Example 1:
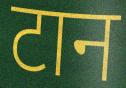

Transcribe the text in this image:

टान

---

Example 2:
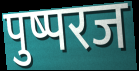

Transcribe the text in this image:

पुष्परज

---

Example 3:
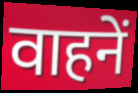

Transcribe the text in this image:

वाहनें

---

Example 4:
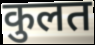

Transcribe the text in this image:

कुलत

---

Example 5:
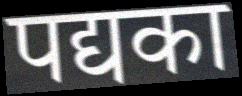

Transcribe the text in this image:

पद्यका